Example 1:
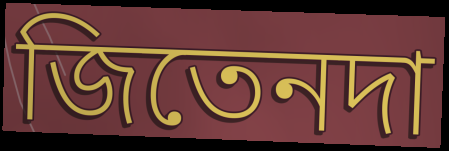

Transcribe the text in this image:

জিতেনদা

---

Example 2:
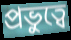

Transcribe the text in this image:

প্রভুত্বে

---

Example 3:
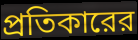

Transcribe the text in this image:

প্রতিকারের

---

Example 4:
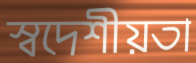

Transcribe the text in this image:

স্বদেশীয়তা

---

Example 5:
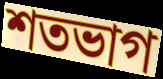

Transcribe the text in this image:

শতভাগ